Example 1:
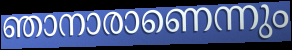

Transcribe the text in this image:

ഞാനാരാണെന്നും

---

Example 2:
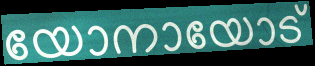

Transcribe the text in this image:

യോനായോട്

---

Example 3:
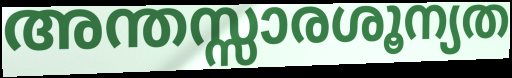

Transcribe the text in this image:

അന്തസ്സാരശൂന്യത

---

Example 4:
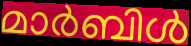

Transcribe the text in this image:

മാർബിൾ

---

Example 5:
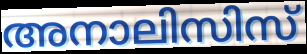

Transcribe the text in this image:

അനാലിസിസ്